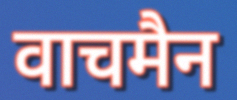
वाचमैन